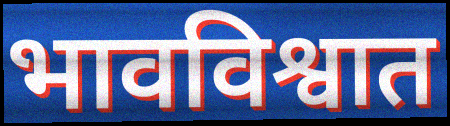
भावविश्वात